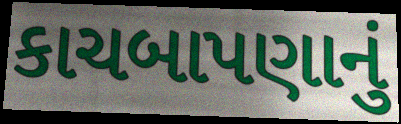
કાચબાપણાનું